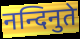
नन्दिनुते